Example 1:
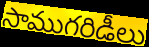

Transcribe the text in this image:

సాముగరిడీలు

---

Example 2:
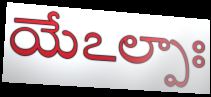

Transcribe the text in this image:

యేఽల్పాః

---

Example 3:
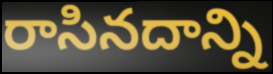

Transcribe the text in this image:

రాసినదాన్ని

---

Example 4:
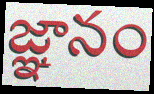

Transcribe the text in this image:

జ్ఞానం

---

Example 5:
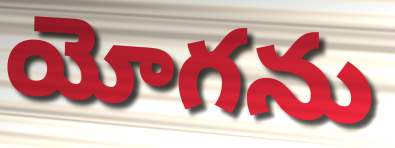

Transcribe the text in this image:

యోగను